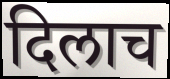
दिलाच